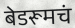
बेडरूमचं